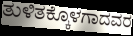
ತುಳಿತಕ್ಕೊಳಗಾದವರ